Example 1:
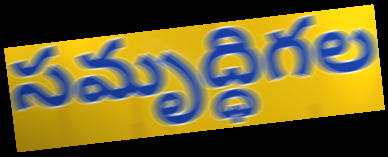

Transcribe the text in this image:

సమృద్ధిగల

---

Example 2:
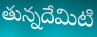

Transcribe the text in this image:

తున్నదేమిటి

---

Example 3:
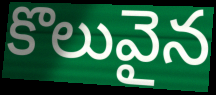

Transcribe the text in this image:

కొలువైన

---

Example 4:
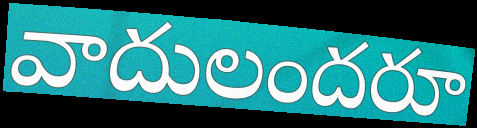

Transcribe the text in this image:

వాదులందరూ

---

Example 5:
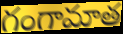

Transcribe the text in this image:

గంగామాత